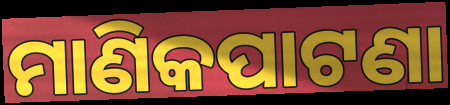
ମାଣିକପାଟଣା